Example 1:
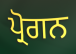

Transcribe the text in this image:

ਪ੍ਰੋਗਨ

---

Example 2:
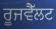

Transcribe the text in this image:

ਰੂਜਵੈੱਲਟ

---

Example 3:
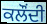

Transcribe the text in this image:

ਕਲੌਂਦੀ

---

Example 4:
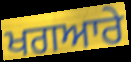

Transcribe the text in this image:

ਖਗਆਰੇ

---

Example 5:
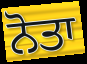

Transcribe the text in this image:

ਨੋਤਾ